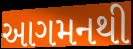
આગમનથી